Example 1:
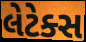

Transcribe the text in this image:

લેટેક્સ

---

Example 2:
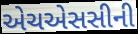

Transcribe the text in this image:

એચએસસીની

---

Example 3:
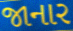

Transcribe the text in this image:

જાનાર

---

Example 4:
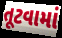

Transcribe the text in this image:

તૂટવામાં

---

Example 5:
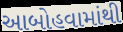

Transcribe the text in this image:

આબોહવામાંથી